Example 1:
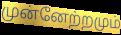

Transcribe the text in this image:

முன்னேற்றமும்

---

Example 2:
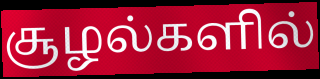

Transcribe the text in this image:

சூழல்களில்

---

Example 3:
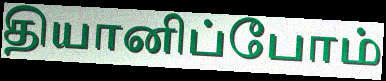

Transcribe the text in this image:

தியானிப்போம்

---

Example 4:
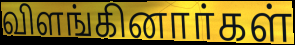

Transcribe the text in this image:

விளங்கினார்கள்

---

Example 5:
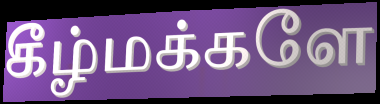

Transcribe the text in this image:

கீழ்மக்களே